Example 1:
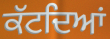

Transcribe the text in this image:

ਕੱਟਦਿਆਂ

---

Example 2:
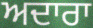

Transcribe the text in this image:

ਅਦਾਰਾ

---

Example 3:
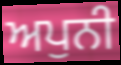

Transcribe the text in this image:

ਅਪੁਨੀ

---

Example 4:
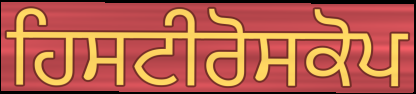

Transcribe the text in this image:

ਹਿਸਟੀਰੋਸਕੋਪ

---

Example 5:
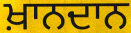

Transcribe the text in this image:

ਖ਼ਾਨਦਾਨ